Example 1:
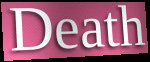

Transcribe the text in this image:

Death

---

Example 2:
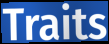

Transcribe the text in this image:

Traits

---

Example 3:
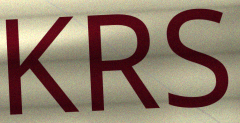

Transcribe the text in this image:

KRS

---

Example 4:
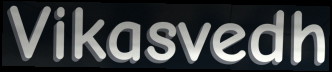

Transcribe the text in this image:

Vikasvedh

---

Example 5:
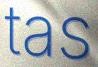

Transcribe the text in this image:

tas